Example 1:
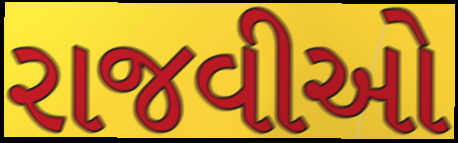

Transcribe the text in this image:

રાજવીઓ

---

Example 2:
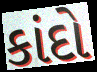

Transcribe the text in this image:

કાંદો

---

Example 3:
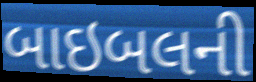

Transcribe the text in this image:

બાઇબલની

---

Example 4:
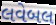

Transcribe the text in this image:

લવેબલ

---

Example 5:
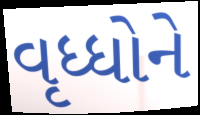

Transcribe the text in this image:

વૃધ્ધોને